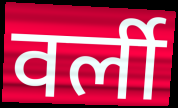
वर्ली